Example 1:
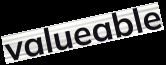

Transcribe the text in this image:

valueable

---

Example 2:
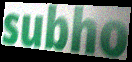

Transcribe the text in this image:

subho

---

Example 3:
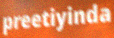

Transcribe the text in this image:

preetiyinda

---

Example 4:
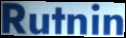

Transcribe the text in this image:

Rutnin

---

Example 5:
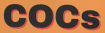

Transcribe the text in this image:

COCs